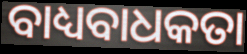
ବାଧ୍ୟବାଧକତା